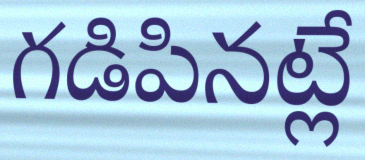
గడిపినట్లే